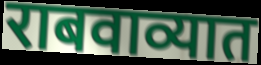
राबवाव्यात